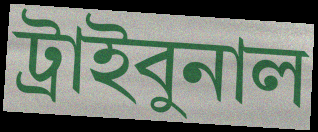
ট্রাইবুনাল